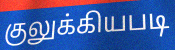
குலுக்கியபடி